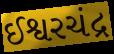
ઈશ્વરચંદ્ર